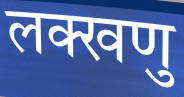
लक्खणु